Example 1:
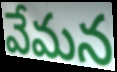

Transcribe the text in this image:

వేమన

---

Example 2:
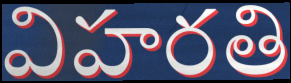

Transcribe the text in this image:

విహరతి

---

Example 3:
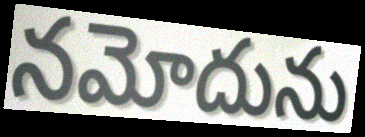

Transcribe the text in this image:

నమోదును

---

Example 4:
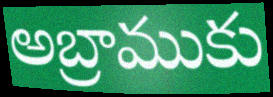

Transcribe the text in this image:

అబ్రాముకు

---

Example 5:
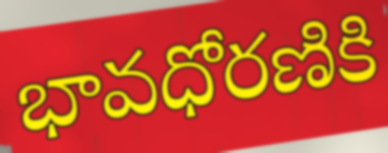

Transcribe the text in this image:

భావధోరణికి